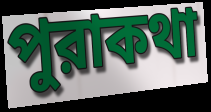
পুরাকথা